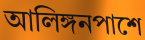
আলিঙ্গনপাশে